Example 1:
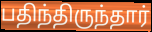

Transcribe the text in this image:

பதிந்திருந்தார்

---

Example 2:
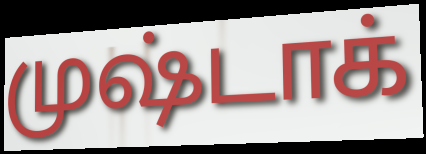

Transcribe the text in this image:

முஷ்டாக்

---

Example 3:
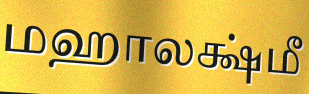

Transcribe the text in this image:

மஹாலக்ஷ்மீ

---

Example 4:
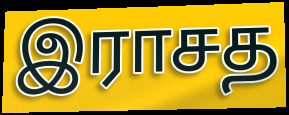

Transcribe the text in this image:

இராசத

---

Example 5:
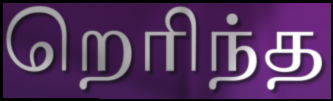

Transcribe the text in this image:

றெரிந்த